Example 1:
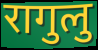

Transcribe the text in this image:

रागुलु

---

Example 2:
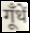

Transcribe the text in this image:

गूँथें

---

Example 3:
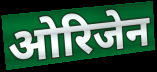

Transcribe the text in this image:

ओरिजेन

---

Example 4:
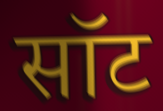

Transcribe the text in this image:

सॉट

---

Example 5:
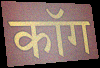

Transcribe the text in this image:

कॉग